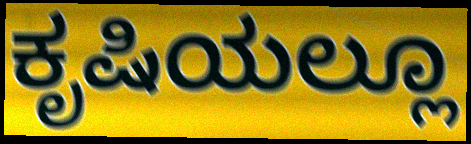
ಕೃಷಿಯಲ್ಲೂ